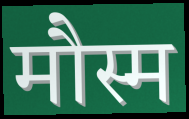
मौस्म